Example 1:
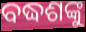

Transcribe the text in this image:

ବଦ୍ଧଶଙ୍କୁ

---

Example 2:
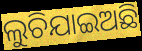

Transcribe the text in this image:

ଲୁଚିଯାଇଅଛି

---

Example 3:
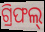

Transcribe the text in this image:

ଗ୍ରିଫଲ୍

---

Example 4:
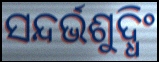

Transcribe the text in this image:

ସନ୍ଦର୍ଭଶୁଦ୍ଧିଂ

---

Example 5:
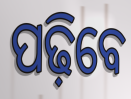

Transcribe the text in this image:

ପଢ଼ିବେ